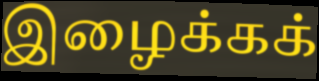
இழைக்கக்